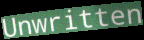
Unwritten